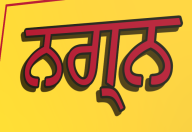
ਨਗ੍ਨ